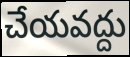
చేయవద్దు